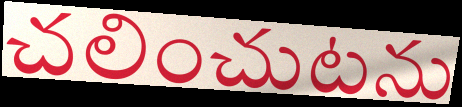
చలించుటను